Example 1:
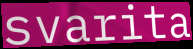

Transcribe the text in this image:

svarita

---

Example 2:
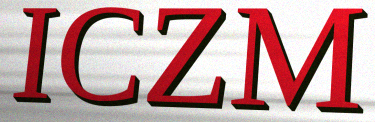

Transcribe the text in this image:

ICZM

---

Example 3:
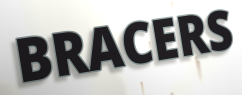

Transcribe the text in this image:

BRACERS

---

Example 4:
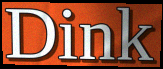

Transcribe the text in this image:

Dink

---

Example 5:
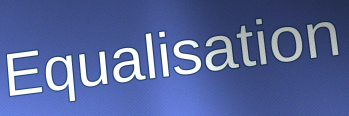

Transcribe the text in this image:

Equalisation